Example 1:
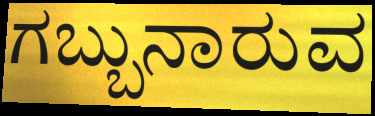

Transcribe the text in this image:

ಗಬ್ಬುನಾರುವ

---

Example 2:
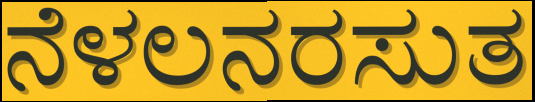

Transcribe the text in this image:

ನೆಳಲನರಸುತ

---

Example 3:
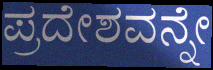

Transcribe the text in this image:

ಪ್ರದೇಶವನ್ನೇ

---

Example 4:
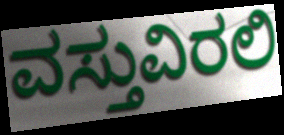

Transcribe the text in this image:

ವಸ್ತುವಿರಲಿ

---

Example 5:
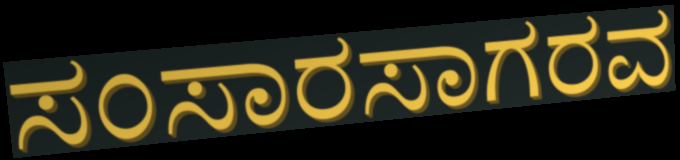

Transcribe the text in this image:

ಸಂಸಾರಸಾಗರವ